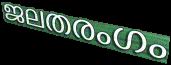
ജലതരംഗം